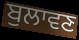
ਬੁਲਾਵਣ